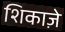
शिकाज़े